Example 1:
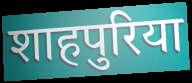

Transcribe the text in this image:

शाहपुरिया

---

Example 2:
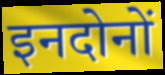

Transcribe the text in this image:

इनदोनों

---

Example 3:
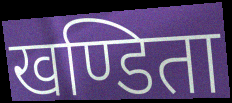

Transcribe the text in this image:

खण्डिता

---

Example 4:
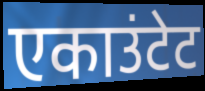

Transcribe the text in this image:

एकाउंटेट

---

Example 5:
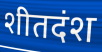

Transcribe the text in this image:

शीतदंश